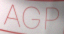
AGP